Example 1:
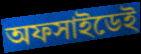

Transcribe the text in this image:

অফসাইডেই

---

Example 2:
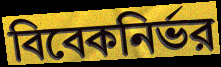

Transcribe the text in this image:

বিবেকনির্ভর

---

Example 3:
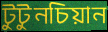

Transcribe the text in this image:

টুটুনচিয়ান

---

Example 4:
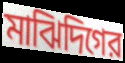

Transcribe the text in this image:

মাঝিদিগের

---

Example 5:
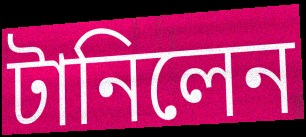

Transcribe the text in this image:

টানিলেন